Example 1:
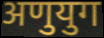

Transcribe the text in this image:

अणुयुग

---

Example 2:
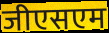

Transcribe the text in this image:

जीएसएम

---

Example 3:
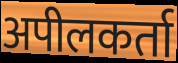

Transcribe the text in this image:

अपीलकर्ता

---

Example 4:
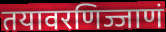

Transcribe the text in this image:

तयावरणिज्जाणं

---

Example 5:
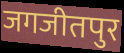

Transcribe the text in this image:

जगजीतपुर